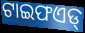
ଟାଇଫଏଡ୍